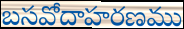
బసవోదాహరణము